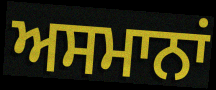
ਅਸਮਾਨਾਂ